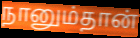
நானும்தான்